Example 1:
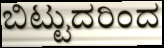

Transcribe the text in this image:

ಬಿಟ್ಟುದರಿಂದ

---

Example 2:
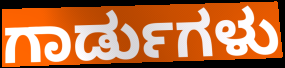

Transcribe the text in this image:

ಗಾರ್ಡುಗಳು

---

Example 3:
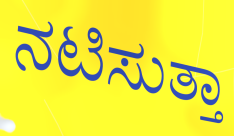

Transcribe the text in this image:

ನಟಿಸುತ್ತಾ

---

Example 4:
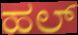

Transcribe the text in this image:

ಹಲ್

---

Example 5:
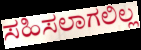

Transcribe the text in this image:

ಸಹಿಸಲಾಗಲಿಲ್ಲ